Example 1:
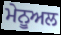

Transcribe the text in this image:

ਮੇਨੂਅਲ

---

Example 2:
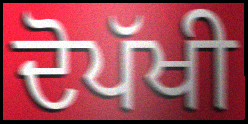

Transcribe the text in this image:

ਦੋਪੱਖੀ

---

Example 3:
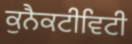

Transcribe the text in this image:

ਕੁਨੈਕਟੀਵਿਟੀ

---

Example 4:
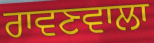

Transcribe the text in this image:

ਰਾਵਣਵਾਲਾ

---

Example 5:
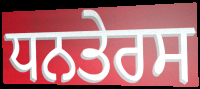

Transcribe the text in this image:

ਧਨਤੇਰਸ